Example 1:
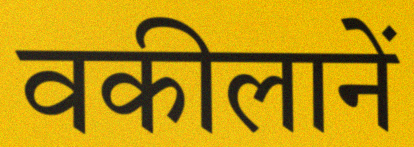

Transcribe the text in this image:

वकीलानें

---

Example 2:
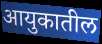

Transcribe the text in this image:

आयुकातील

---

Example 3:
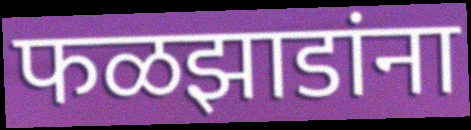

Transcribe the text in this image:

फळझाडांना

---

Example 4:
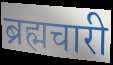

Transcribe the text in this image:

ब्रह्मचारी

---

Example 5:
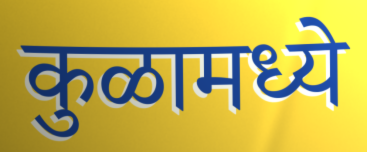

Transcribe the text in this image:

कुळामध्ये